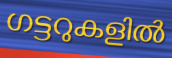
ഗട്ടറുകളിൽ